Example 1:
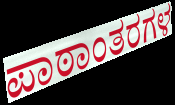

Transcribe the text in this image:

ಪಾಠಾಂತರಗಳ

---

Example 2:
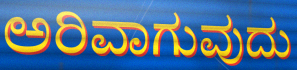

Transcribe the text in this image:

ಅರಿವಾಗುವುದು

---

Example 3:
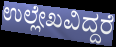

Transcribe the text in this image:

ಉಲ್ಲೇಖವಿದ್ದರೆ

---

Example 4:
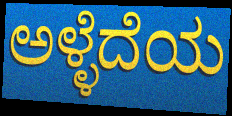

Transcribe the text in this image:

ಅಳ್ಳೆದೆಯ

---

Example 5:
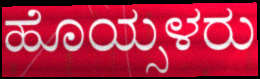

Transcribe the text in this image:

ಹೊಯ್ಸಳರು